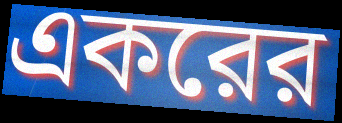
একরের